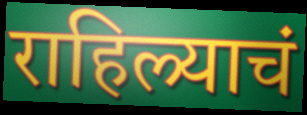
राहिल्याचं